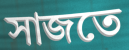
সাজতে